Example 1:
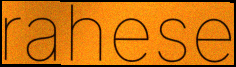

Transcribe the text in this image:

rahese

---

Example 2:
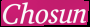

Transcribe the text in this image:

Chosun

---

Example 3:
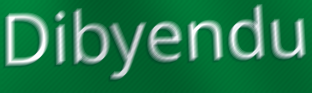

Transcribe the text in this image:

Dibyendu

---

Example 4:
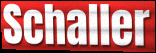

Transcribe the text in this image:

Schaller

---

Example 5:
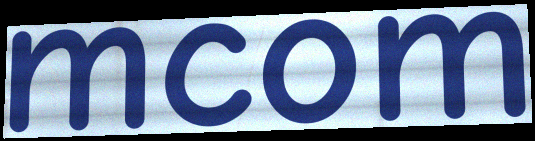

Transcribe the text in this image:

mcom